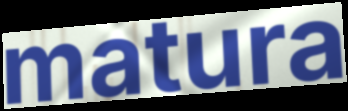
matura